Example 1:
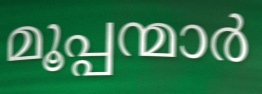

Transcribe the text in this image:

മൂപ്പന്മാർ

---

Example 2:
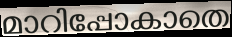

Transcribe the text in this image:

മാറിപ്പോകാതെ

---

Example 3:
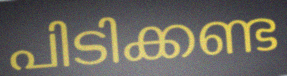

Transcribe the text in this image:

പിടിക്കണ്ട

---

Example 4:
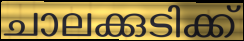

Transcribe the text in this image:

ചാലക്കുടിക്ക്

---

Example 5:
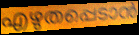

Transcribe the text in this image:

എഴുതപ്പെടാൻ